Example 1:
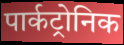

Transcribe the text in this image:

पार्कट्रोनिक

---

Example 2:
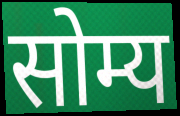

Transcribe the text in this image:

सोम्य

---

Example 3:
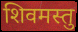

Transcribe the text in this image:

शिवमस्तु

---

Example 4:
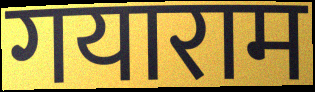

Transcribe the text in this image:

गयाराम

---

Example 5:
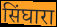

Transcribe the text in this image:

सिंघारा